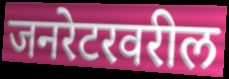
जनरेटरवरील